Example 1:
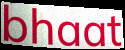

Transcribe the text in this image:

bhaat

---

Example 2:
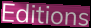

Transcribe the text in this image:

Editions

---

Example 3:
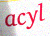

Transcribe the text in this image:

acyl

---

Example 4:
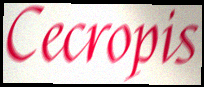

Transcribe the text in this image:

Cecropis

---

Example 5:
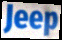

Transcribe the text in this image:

Jeep